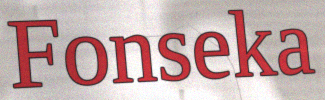
Fonseka